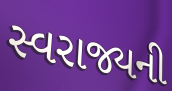
સ્વરાજ્યની